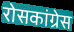
रोसकांग्रेस